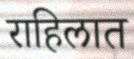
राहिलात